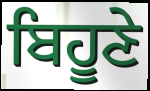
ਬਿਹੂਣੇ